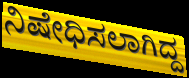
ನಿಷೇಧಿಸಲಾಗಿದ್ದ